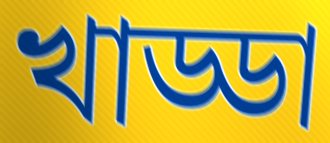
খাড্ডা